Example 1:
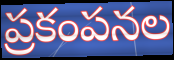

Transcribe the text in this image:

ప్రకంపనల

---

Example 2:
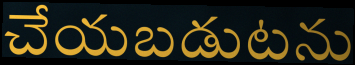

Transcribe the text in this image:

చేయబడుటను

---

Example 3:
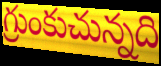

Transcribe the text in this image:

గ్రుంకుచున్నది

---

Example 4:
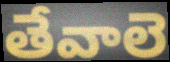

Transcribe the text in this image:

తేవాలె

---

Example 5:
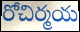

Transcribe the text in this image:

రోచిర్మయ